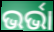
ଭର୍ଭା